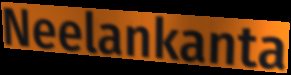
Neelankanta